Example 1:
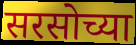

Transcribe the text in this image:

सरसोच्या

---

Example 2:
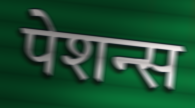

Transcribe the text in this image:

पेशन्स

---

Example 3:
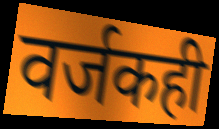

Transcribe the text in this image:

वर्जकही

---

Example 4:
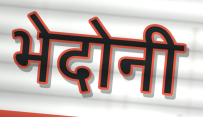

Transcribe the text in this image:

भेदोनी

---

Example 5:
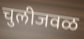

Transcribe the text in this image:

चुलीजवळ